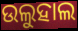
ଉଲୁହାଲ